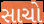
સાચો